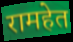
रामहेत